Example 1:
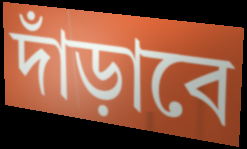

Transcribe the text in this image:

দাঁড়াবে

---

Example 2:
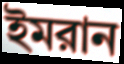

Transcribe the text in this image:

ইমরান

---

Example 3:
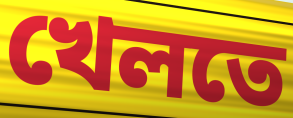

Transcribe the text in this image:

খেলতে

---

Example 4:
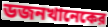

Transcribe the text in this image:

ডজনখানেকের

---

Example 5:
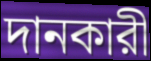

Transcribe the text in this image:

দানকারী